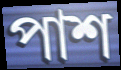
পাশ